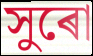
সুৰো